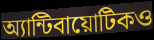
অ্যান্টিবায়োটিকও